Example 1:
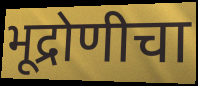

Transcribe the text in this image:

भूद्रोणीचा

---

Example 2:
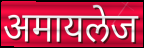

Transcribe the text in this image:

अमायलेज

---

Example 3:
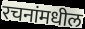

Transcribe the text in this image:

रचनांमधील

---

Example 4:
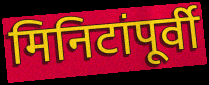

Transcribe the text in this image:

मिनिटांपूर्वी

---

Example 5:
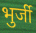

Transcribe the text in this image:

भुर्जी